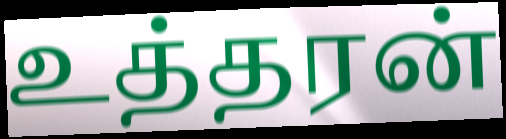
உத்தரன்